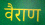
वैराण